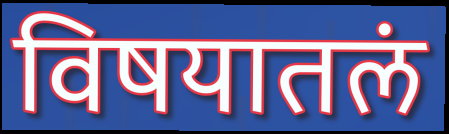
विषयातलं